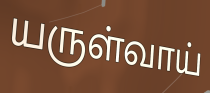
யருள்வாய்